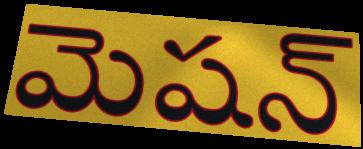
మెషన్